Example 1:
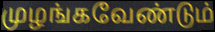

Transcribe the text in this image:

முழங்கவேண்டும்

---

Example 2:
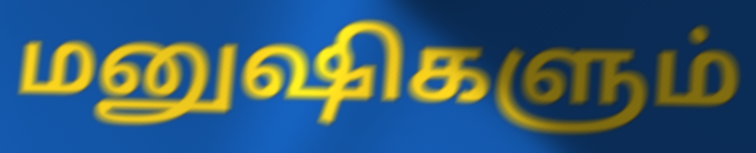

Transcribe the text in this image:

மனுஷிகளும்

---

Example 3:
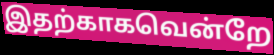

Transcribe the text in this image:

இதற்காகவென்றே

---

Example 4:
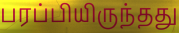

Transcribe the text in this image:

பரப்பியிருந்தது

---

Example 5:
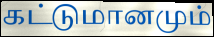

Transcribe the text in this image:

கட்டுமானமும்